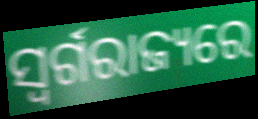
ସ୍ୱର୍ଗରାଜ୍ୟରେ